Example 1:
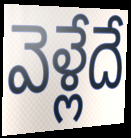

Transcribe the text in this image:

వెళ్లేదే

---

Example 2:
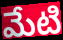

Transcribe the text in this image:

మేటి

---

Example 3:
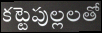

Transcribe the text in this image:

కట్టెపుల్లలతో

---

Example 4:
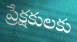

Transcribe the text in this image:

ప్రేక్షకులకు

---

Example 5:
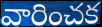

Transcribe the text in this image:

వారించక